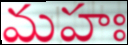
మహః